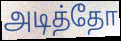
அடித்தோ